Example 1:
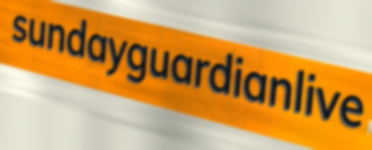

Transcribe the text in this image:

sundayguardianlive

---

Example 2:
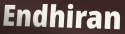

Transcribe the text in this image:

Endhiran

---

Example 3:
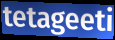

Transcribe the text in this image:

tetageeti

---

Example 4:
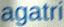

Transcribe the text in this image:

agatri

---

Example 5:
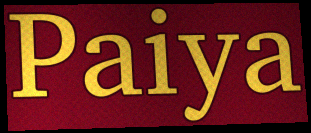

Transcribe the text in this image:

Paiya